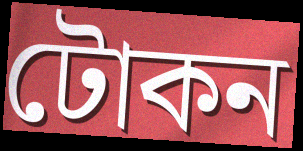
টোকন